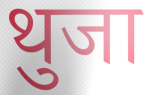
थुजा